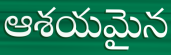
ఆశయమైన